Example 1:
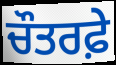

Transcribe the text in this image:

ਚੌਤਰਫ਼ੇ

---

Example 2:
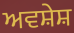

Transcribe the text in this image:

ਅਵਸ਼ੇਸ਼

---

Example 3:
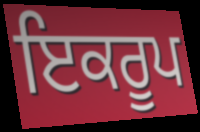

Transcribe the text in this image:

ਇਕਰੂਪ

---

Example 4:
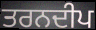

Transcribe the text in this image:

ਤਰਨਦੀਪ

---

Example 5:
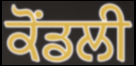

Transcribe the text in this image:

ਕੋਂਡਲੀ